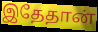
இதேதான்